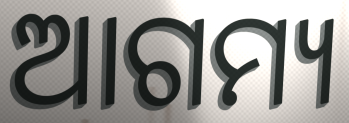
ଆଗମ୍ୟ